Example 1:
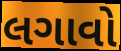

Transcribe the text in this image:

લગાવો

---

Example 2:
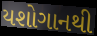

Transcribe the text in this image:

યશોગાનથી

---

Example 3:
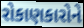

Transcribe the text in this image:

રોકાણકારોને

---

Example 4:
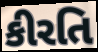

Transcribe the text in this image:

કીરતિ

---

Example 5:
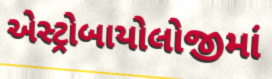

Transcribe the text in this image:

એસ્ટ્રોબાયોલોજીમાં